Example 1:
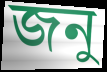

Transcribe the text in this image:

জনু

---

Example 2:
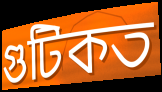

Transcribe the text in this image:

গুটিকত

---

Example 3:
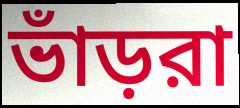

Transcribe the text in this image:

ভাঁড়রা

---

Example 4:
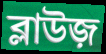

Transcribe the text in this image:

ব্লাউজ়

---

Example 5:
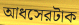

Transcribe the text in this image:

আধসেরটাক